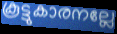
കൂട്ടുകാരനല്ലേ